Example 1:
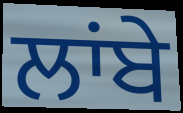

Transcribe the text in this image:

ਲਾਂਬੇ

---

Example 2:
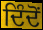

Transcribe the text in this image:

ਦਿੰਦੋਂ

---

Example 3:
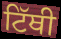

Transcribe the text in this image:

ਟਿੱਥੀ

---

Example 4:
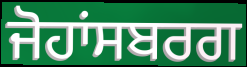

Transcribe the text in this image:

ਜੋਹਾਂਸਬਰਗ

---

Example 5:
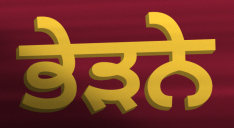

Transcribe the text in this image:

ਭੇੜਨੇ